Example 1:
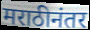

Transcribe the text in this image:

मराठीनंतर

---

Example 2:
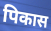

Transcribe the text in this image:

पिकास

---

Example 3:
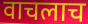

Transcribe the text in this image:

वाचलाच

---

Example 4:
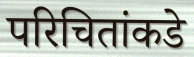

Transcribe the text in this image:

परिचितांकडे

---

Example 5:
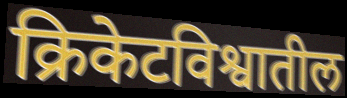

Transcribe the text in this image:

क्रिकेटविश्वातील